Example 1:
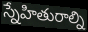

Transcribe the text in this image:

స్నేహితురాల్ని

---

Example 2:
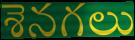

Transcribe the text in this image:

శెనగలు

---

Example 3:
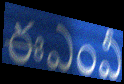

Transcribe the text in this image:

ఈఎంవీ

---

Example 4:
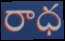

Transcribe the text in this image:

రాధ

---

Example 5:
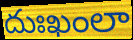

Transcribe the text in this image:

దుఃఖంలా